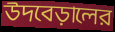
উদবেড়ালের